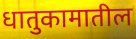
धातुकामातील